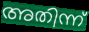
അതിന്ന്